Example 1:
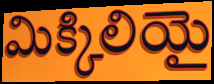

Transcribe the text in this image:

మిక్కిలియై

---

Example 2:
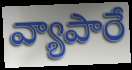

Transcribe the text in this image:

వ్యాపారే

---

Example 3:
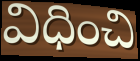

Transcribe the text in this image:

విధించి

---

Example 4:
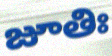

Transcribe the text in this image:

జూతిః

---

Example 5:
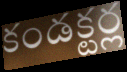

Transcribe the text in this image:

కండక్టర్ల